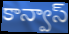
కాన్వాస్